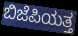
ಬಿಜೆಪಿಯತ್ತ